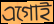
এগোই